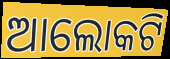
ଆଲୋକଟି